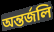
অন্তর্জলি